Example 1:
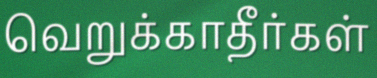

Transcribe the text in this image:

வெறுக்காதீர்கள்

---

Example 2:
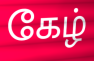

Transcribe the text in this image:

கேழ்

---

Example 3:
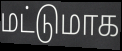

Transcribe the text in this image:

மட்டுமாக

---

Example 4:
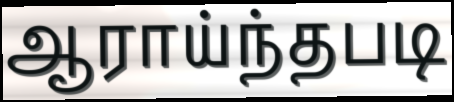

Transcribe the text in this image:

ஆராய்ந்தபடி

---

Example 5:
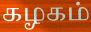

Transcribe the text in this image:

கழகம்